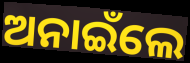
ଅନାଇଁଲେ